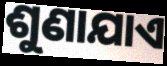
ଶୁଣାଯାଏ